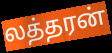
லத்தரன்